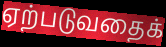
ஏற்படுவதைக்